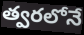
త్వరలోనే